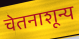
चेतनाशून्य